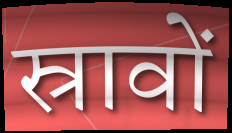
स्रावों